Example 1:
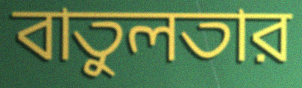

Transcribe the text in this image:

বাতুলতার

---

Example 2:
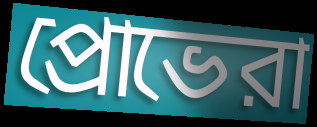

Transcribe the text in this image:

প্রোভেরা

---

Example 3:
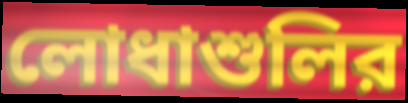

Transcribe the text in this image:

লোধাশুলির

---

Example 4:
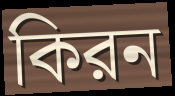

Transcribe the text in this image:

কিরন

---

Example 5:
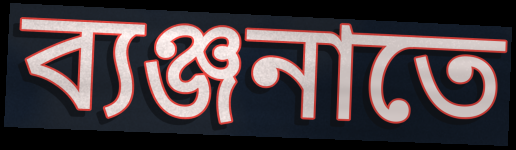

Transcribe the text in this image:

ব্যঞ্জনাতে